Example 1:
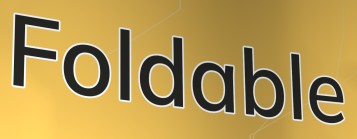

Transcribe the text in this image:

Foldable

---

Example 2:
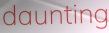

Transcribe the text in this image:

daunting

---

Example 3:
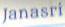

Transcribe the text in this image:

Janasri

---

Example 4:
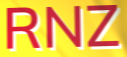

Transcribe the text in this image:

RNZ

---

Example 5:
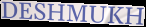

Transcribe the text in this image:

DESHMUKH